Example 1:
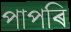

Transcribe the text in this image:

পাপৰি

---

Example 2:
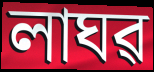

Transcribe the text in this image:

লাঘৱ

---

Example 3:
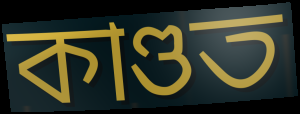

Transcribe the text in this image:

কাণ্ডত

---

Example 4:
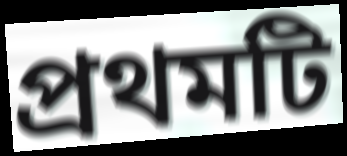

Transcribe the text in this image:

প্ৰথমটি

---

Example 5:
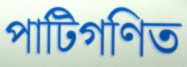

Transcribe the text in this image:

পাটিগণিত